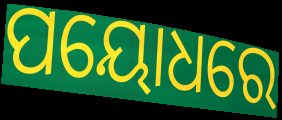
ପୟୋଧରେ